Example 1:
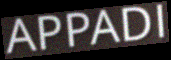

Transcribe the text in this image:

APPADI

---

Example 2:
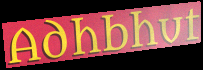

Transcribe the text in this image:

Adhbhut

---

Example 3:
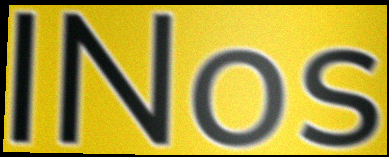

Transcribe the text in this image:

INos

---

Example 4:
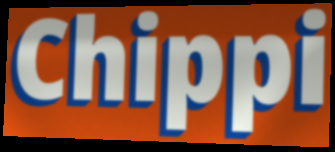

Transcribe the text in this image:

Chippi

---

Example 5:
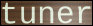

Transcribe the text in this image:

tuner